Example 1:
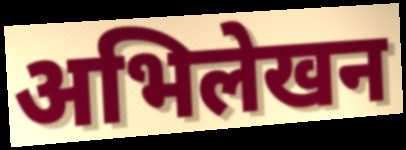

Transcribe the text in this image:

अभिलेखन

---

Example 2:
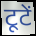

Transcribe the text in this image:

टूटें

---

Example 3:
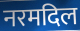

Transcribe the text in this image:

नरमदिल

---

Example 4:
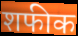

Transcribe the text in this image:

शफीक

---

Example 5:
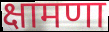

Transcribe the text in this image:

क्षामणा